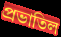
প্রভাতিল